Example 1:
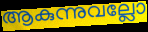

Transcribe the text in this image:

ആകുന്നുവല്ലോ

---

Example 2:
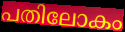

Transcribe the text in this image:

പതിലോകം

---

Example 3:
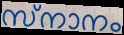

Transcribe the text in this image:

സ്‌നാനം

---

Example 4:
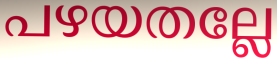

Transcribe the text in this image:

പഴയതല്ലേ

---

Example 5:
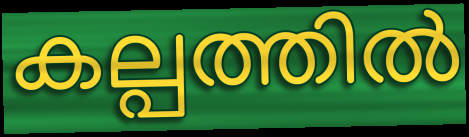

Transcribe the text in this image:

കല്പത്തിൽ